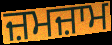
ਜ਼ਮਜ਼ਾਮ